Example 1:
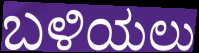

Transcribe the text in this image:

ಬಳಿಯಲು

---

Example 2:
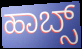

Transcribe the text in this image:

ಹಾಬ್ಸ್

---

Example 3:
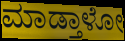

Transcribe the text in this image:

ಮಾಡ್ತಾಳೋ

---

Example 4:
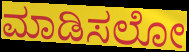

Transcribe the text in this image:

ಮಾಡಿಸಲೋ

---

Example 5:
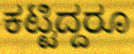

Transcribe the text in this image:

ಕಟ್ಟಿದ್ದರೂ